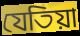
যেতিয়া